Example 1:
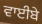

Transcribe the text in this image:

ਵਾਈਬੇ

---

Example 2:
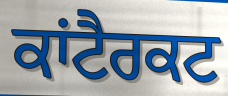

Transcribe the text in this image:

ਕਾਂਟੈਰਕਟ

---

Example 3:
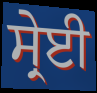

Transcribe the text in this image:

ਸ੍ਰੇਈ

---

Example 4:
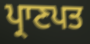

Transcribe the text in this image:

ਪ੍ਰਾਣਪਤ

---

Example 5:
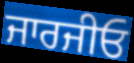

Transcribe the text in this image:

ਜਾਰਜੀਓ